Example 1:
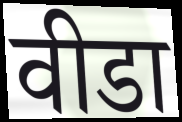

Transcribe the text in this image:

वीडा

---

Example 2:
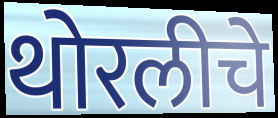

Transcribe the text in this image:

थोरलीचे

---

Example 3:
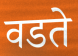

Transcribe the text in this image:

वडते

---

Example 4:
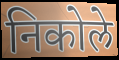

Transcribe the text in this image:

निकोले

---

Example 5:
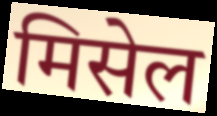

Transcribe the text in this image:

मिसेल